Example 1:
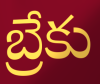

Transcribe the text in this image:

బ్రేకు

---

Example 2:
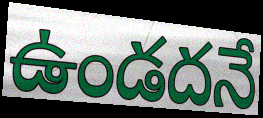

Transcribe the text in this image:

ఉండదనే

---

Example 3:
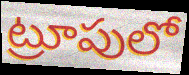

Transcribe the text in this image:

ట్రూపులో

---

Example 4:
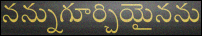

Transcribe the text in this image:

నన్నుగూర్చియైనను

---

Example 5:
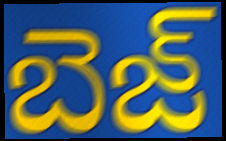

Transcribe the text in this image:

బెజ్